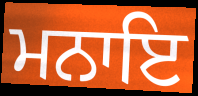
ਮਨਾਇ